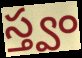
స్త్వం